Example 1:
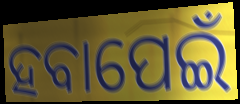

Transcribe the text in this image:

ହବାପେଇଁ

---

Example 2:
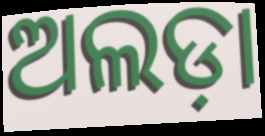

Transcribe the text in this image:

ଅଲଡ଼ା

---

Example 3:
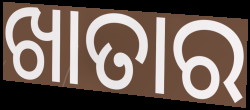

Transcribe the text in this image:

ଖାତାର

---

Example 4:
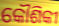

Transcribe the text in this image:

କୌଶିକୀ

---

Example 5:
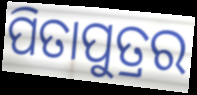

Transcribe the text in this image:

ପିତାପୁତ୍ରର